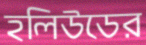
হলিউডের